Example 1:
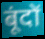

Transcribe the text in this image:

बूंदों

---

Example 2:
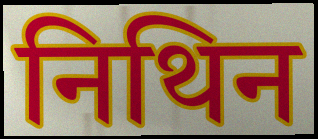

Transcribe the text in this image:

निथिन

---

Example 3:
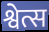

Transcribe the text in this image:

श्वेत्स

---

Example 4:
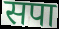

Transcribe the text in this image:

सपा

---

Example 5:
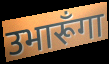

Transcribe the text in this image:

उभारूँगा